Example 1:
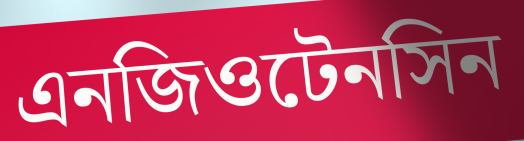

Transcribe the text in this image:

এনজিওটেনসিন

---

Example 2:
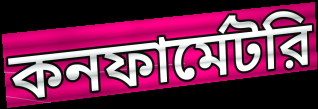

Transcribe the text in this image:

কনফার্মেটরি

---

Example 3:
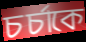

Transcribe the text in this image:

চর্চাকে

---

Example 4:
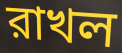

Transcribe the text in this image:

রাখল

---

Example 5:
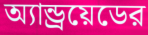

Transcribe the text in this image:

অ্যান্ড্রয়েডের